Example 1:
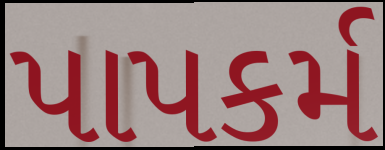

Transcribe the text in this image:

પાપકર્મ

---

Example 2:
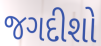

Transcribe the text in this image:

જગદીશો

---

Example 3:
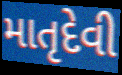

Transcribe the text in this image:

માતૃદેવી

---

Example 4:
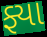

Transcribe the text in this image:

ફ્યા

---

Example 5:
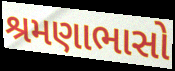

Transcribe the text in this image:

શ્રમણાભાસો